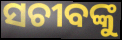
ସଚୀବଙ୍କୁ